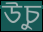
উচু